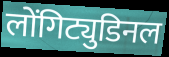
लोंगिट्युडिनल